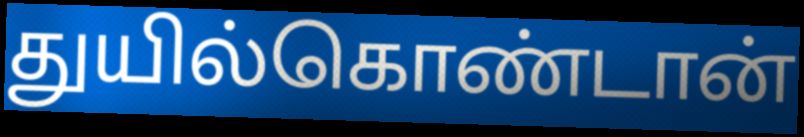
துயில்கொண்டான்